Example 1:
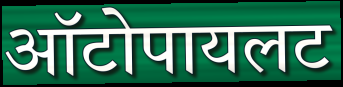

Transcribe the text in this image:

ऑटोपायलट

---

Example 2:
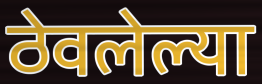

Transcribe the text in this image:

ठेवलेल्या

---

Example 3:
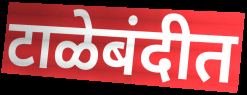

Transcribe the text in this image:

टाळेबंदीत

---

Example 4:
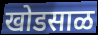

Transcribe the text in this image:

खोडसाळ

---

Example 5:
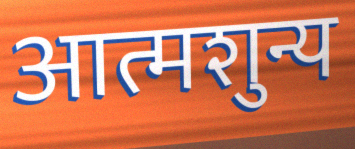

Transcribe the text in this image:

आत्मशुन्य